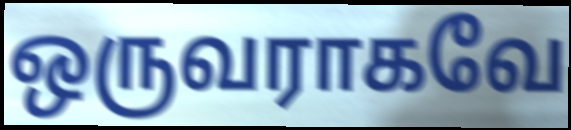
ஒருவராகவே